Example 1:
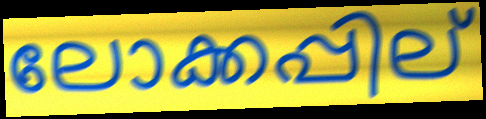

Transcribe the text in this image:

ലോക്കപ്പില്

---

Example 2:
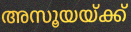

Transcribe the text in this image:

അസൂയയ്ക്ക്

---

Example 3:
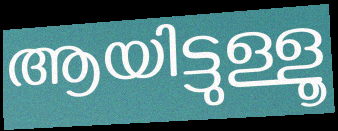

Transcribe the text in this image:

ആയിട്ടുള്ളൂ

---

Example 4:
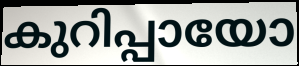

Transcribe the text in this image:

കുറിപ്പായോ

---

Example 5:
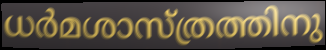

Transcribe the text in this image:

ധർമശാസ്ത്രത്തിനു